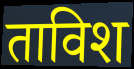
ताविश